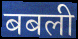
बबली